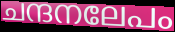
ചന്ദനലേപം